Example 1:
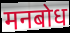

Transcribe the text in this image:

मनबोध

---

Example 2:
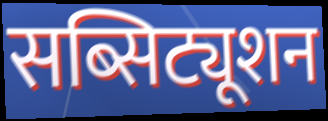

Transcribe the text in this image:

सब्सिट्यूशन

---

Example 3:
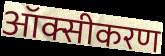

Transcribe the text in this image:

ऑक्सीकरण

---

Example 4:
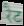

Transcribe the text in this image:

रैट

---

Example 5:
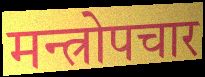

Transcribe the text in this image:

मन्त्रोपचार